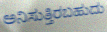
ಅನಿಸುತ್ತಿರಬಹುದು